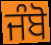
ਜੰਬੋ